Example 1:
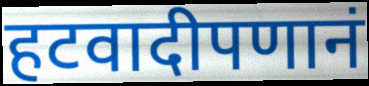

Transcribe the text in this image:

हटवादीपणानं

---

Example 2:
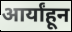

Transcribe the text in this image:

आर्यांहून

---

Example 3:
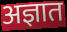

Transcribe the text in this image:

अज्ञात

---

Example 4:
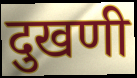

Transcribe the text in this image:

दुखणी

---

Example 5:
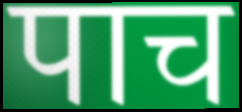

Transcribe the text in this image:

पाच